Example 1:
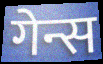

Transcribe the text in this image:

गेन्स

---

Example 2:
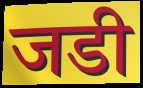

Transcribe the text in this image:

जडी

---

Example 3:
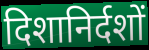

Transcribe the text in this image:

दिशानिर्दशों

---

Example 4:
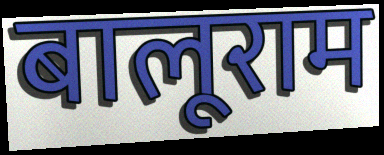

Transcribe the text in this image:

बालूराम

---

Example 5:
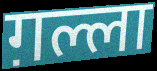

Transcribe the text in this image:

ग़ल्ला